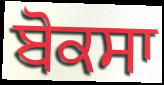
ਬੋਕਸਾ